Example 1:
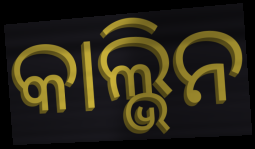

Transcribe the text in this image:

କାଲ୍ଭିନ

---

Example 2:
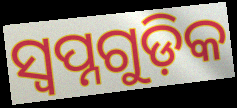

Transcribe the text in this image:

ସ୍ଵପ୍ନଗୁଡ଼ିକ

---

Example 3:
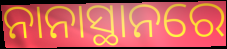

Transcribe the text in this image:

ନାନାସ୍ଥାନରେ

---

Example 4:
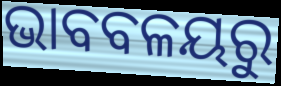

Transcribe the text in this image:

ଭାବବଳୟରୁ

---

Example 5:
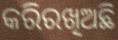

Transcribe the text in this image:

କରିରଖିଅଛି